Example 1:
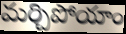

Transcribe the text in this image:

మర్చిపోయాం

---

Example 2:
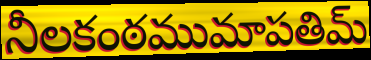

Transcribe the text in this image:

నీలకంఠముమాపతిమ్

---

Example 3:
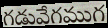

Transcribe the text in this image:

గడువేగముగ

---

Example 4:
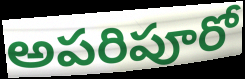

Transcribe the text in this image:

అపరిపూరో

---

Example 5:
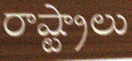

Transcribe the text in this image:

రాష్ట్రాలు